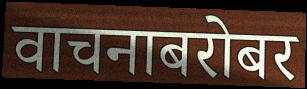
वाचनाबरोबर